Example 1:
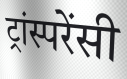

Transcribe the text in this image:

ट्रांस्परेंसी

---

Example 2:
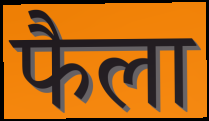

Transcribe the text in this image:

फैला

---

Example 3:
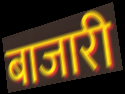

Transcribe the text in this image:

बाजारी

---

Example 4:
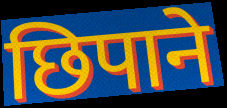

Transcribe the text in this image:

छिपाने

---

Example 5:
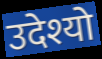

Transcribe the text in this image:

उदेश्यो